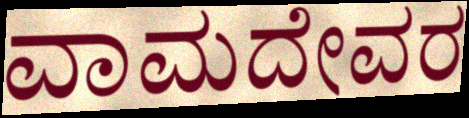
ವಾಮದೇವರ